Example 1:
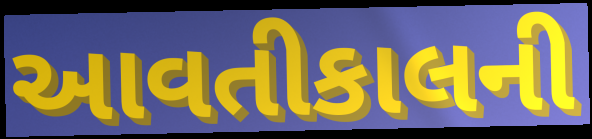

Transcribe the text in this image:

આવતીકાલની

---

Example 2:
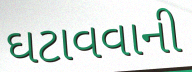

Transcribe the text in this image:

ઘટાવવાની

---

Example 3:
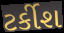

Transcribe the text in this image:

ટર્કીશ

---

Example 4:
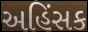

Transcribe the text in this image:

અહિંસક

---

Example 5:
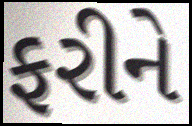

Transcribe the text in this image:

ફરીને